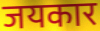
जयकार